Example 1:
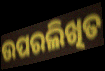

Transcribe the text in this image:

ଉପରଲିଖିତ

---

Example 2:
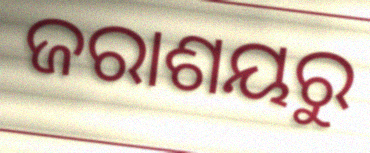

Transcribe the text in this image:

ଜରାଶୟରୁ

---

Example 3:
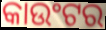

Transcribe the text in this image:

କାଉଂଟର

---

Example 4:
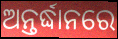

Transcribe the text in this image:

ଅନ୍ତର୍ଦ୍ଧାନରେ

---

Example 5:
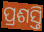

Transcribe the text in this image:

ପ୍ରଶସ୍ତି